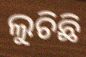
ଲୁଚିଛି